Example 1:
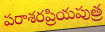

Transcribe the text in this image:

పరాశరప్రియపుత్ర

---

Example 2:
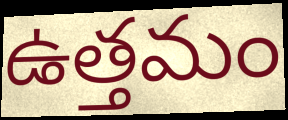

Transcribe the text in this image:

ఉత్తమం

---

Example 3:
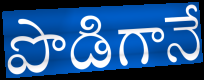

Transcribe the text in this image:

పొడిగానే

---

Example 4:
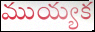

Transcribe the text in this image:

ముయ్యక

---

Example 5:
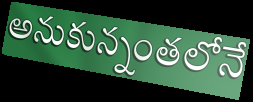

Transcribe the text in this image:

అనుకున్నంతలోనే